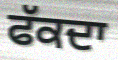
ਫੱਕਦਾ